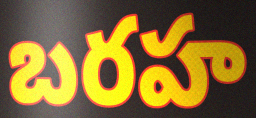
బరహ